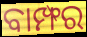
ବାମ୍ଫର